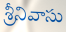
శ్రీనివాసు